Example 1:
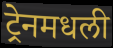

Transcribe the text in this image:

ट्रेनमधली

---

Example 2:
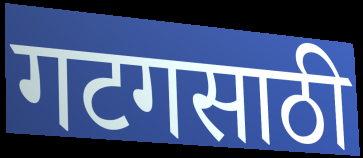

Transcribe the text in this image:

गटगसाठी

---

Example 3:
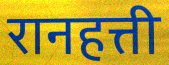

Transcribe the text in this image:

रानहत्ती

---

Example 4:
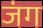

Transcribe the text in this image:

जंग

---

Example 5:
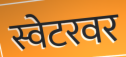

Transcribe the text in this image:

स्वेटरवर